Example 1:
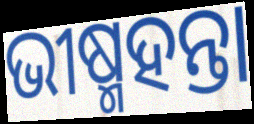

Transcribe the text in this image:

ଭୀଷ୍ମହନ୍ତା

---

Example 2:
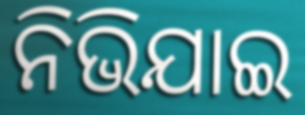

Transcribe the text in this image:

ନିଭିଯାଇ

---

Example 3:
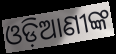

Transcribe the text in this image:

ଓଡ଼ିଆଣୀଙ୍କ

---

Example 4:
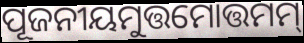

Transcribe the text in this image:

ପୂଜନୀୟମୁତ୍ତମୋତ୍ତମମ୍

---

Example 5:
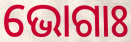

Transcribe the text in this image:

ଭୋଗାଃ